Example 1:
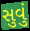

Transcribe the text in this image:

સુવું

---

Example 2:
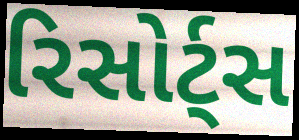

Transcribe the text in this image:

રિસોર્ટ્સ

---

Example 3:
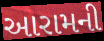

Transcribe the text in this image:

આરામની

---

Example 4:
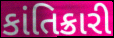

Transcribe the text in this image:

કાંતિક્રારી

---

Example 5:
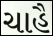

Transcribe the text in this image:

ચાહૈ